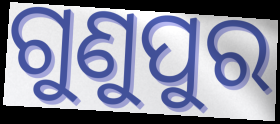
ଗୁଣୁପୁର